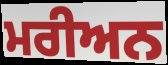
ਮਰੀਅਨ